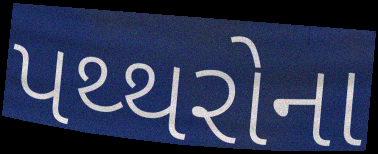
પથ્થરોના